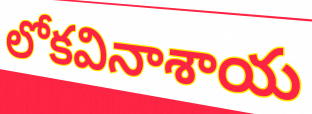
లోకవినాశాయ